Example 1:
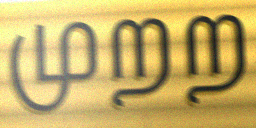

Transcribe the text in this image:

முறற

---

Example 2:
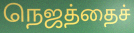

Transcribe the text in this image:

நெஜத்தைச்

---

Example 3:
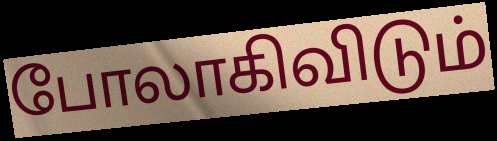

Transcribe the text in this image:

போலாகிவிடும்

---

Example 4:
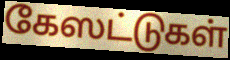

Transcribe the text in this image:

கேஸட்டுகள்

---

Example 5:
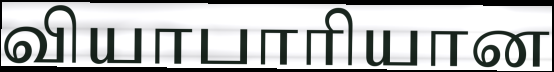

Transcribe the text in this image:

வியாபாரியான